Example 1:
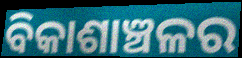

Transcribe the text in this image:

ବିକାଶାଞ୍ଚଳର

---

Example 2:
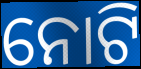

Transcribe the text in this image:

ନୋଟି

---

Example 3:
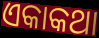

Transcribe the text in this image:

ଏକାକଥା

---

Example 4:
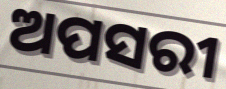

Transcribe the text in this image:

ଅପସରୀ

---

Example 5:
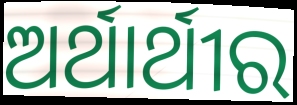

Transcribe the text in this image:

ଅର୍ଥାର୍ଥୀର